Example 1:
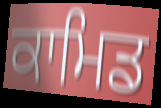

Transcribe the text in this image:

ਕਾਮਿਡ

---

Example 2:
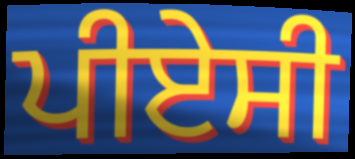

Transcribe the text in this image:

ਪੀਏਸੀ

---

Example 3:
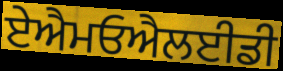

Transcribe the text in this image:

ਏਐਮਓਐਲਈਡੀ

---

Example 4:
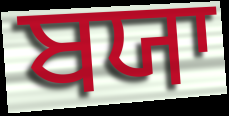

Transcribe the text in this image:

ਬਯਾ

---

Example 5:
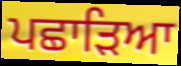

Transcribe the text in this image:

ਪਛਾੜਿਆ